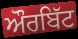
ਔਰਬਿੱਟ